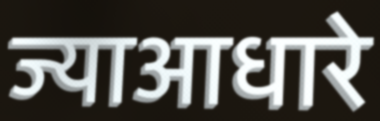
ज्याआधारे